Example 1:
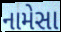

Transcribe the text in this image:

નામેસા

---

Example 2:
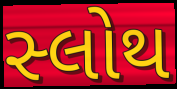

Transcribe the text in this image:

સ્લોથ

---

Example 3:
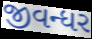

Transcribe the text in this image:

જીવન્ધર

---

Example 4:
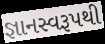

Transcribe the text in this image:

જ્ઞાનસ્વરૂપથી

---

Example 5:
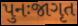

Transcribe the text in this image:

પુનઃજાગૃત